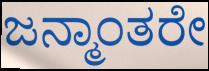
ಜನ್ಮಾಂತರೇ